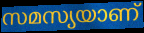
സമസ്യയാണ്